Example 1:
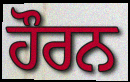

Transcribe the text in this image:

ਹੌਰਨ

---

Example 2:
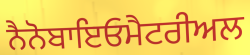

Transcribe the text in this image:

ਨੈਨੋਬਾਇਓਮੈਟਰੀਅਲ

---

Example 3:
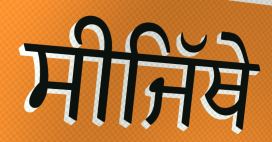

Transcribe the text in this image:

ਸੀਜਿੱਥੇ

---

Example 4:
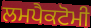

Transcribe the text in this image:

ਲਮਪੈਕਟੋਮੀ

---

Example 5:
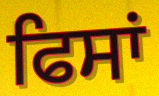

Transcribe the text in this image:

ਫਿਸਾਂ